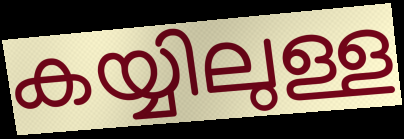
കയ്യിലുള്ള